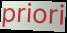
priori